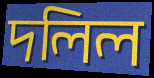
দলিল